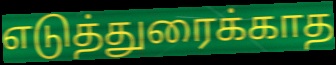
எடுத்துரைக்காத